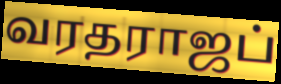
வரதராஜப்